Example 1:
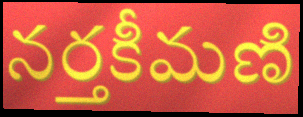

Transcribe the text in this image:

నర్తకీమణి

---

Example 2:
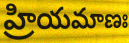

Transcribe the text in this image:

హ్రియమాణః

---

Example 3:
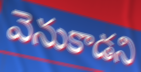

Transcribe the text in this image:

వెనుకాడని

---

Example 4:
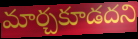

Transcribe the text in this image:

మార్చకూడదని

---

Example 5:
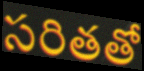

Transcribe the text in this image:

సరితతో